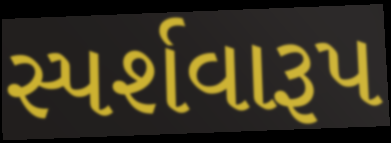
સ્પર્શવારૂપ